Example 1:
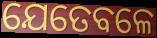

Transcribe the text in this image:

ଯେତେବଳେ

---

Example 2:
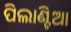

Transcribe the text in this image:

ପିଲାଣ୍ଟିଆ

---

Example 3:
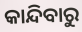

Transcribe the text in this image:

କାନ୍ଦିବାରୁ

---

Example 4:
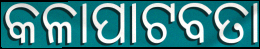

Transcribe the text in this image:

କଳାପାଟବତା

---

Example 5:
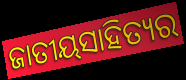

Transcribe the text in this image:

ଜାତୀୟସାହିତ୍ୟର